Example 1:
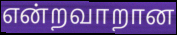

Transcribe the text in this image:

என்றவாறான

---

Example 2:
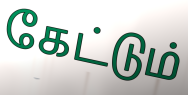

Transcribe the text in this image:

கேட்டும்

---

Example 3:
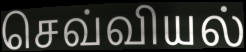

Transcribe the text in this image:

செவ்வியல்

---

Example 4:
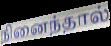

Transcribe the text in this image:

நினைந்தால்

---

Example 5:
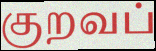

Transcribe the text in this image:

குறவப்